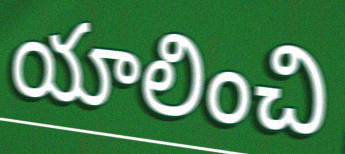
యాలించి